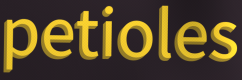
petioles